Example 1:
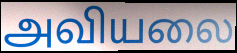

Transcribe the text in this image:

அவியலை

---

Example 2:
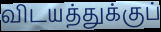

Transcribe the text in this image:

விடயத்துக்குப்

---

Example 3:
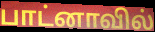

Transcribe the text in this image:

பாட்னாவில்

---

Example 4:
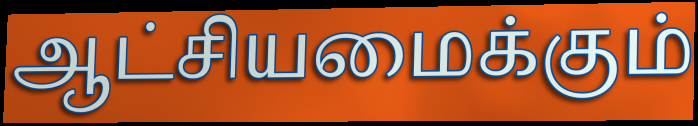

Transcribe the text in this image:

ஆட்சியமைக்கும்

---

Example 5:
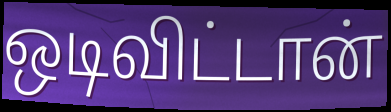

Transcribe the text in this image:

ஒடிவிட்டான்